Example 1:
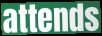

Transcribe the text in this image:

attends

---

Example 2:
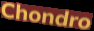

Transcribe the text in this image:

Chondro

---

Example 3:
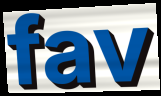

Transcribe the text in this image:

fav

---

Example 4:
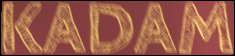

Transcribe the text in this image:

KADAM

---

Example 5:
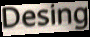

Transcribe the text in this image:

Desing